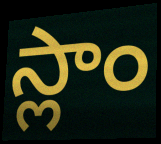
స్లాం